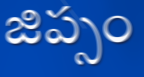
జిప్సం